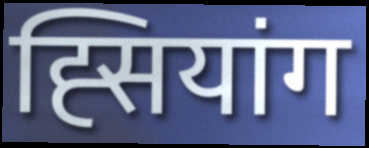
ह्सियांग